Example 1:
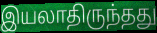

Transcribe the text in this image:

இயலாதிருந்தது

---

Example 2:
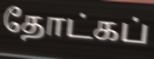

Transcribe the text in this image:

தோட்கப்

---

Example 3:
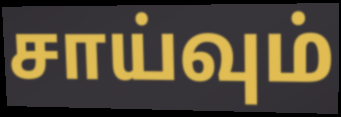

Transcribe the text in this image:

சாய்வும்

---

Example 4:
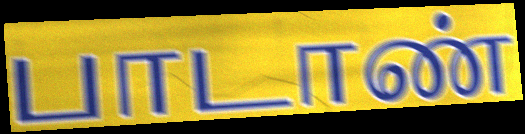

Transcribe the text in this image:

பாடாண்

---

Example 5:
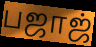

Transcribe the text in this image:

பஜாஜ்